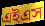
এইএস